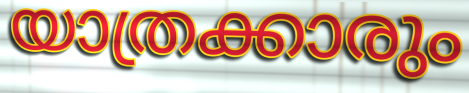
യാത്രക്കാരും